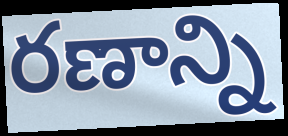
రణాన్ని